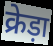
क्रेड़ा